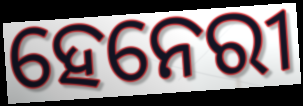
ହେନେରୀ